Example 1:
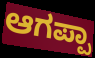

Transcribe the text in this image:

ಆಗಪ್ಪಾ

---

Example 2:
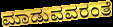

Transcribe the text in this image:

ಮಾಡುವವರಂತೆ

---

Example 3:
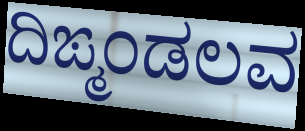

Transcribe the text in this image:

ದಿಙ್ಮಂಡಲವ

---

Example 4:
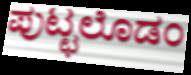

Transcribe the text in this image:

ಪುಟ್ಟಲೊಡಂ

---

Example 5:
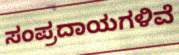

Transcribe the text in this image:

ಸಂಪ್ರದಾಯಗಳಿವೆ